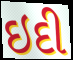
ઇદી